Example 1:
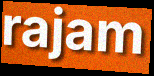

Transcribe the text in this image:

rajam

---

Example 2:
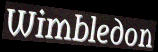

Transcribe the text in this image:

Wimbledon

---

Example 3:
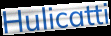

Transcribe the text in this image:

Hulicatti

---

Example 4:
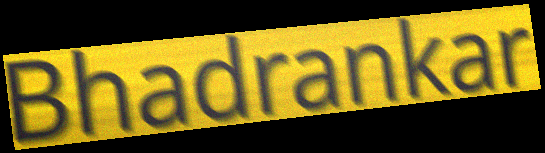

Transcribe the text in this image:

Bhadrankar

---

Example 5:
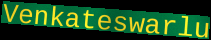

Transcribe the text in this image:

Venkateswarlu